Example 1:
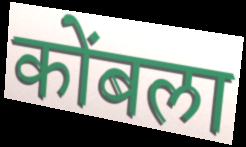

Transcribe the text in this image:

कोंबला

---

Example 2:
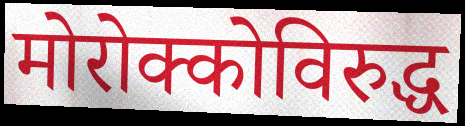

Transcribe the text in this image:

मोरोक्कोविरुद्ध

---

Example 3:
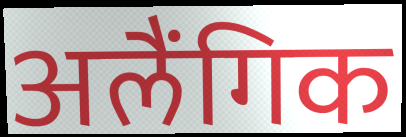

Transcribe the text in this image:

अलैंगिक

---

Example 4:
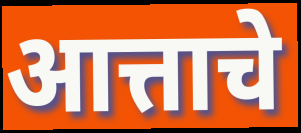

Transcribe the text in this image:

आत्ताचे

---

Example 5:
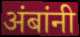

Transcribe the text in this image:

अंबांनी